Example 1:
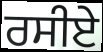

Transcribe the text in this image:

ਰਸੀਏ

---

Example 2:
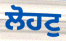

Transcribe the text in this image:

ਲੋਹਟੁ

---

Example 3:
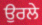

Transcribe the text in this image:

ਉਰਲੇ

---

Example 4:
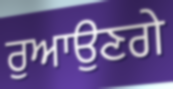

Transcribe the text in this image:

ਰੁਆਉਣਗੇ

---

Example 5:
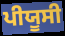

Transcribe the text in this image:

ਪੀਯੂਸੀ